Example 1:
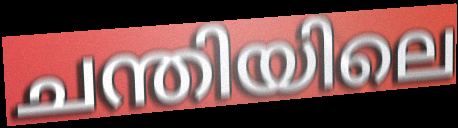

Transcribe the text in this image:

ചന്തിയിലെ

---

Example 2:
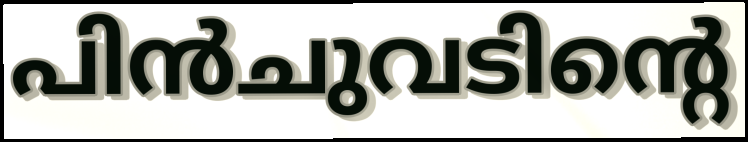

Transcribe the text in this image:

പിൻചുവടിന്റെ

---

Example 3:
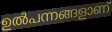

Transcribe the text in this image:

ഉൽപന്നങ്ങളാണ്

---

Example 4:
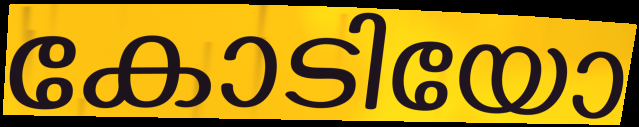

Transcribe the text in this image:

കോടിയോ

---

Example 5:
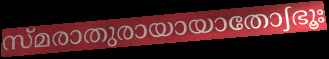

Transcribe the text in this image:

സ്മരാതുരായായാതോഽഭൂഃ